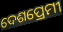
ଦେଶପ୍ରେମୀ